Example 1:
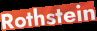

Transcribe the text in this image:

Rothstein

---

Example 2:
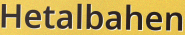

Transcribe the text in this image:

Hetalbahen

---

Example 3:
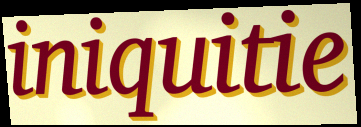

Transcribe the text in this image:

iniquitie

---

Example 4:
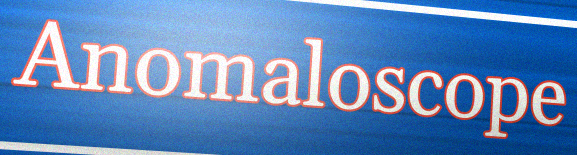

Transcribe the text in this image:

Anomaloscope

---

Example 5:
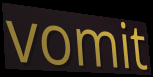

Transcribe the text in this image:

vomit